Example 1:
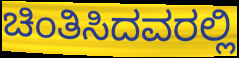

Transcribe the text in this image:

ಚಿಂತಿಸಿದವರಲ್ಲಿ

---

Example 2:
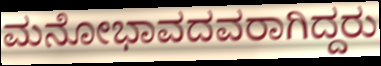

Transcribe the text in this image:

ಮನೋಭಾವದವರಾಗಿದ್ದರು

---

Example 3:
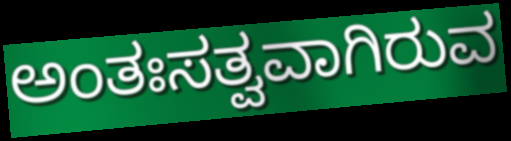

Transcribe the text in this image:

ಅಂತಃಸತ್ವವಾಗಿರುವ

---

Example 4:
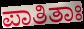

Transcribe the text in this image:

ಪಾತಿತಾಃ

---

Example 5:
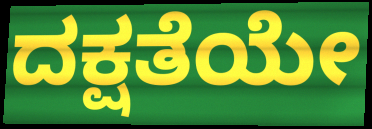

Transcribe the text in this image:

ದಕ್ಷತೆಯೇ